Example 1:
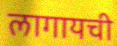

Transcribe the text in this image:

लागायची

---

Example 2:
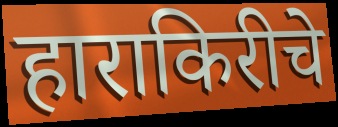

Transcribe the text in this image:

हाराकिरीचे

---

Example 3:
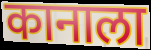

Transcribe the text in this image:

कानाला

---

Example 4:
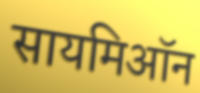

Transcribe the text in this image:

सायमिऑन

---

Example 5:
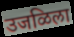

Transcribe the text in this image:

उजळिला